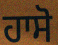
ਹਾਸੋ